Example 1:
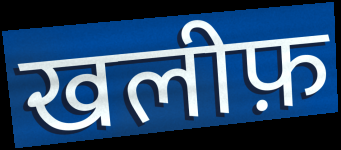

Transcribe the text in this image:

खलीफ़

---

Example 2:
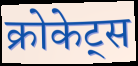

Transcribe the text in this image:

क्रोकेट्स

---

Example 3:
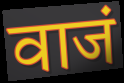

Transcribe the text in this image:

वाजं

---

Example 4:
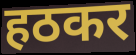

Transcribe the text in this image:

हठकर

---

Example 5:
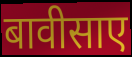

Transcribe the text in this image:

बावीसाए